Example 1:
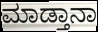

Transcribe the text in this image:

ಮಾಡ್ತಾನಾ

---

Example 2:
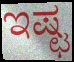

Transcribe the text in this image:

ಇಷ್ಟ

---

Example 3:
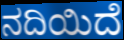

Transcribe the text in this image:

ನದಿಯಿದೆ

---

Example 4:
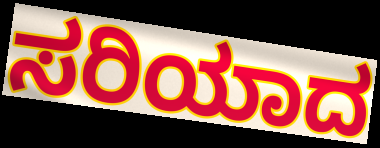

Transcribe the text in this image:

ಸರಿಯಾದ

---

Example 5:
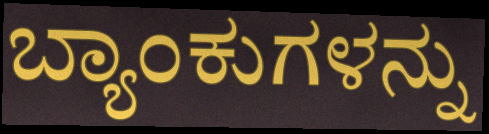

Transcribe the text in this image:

ಬ್ಯಾಂಕುಗಳನ್ನು